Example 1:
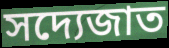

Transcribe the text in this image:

সদ্যেজাত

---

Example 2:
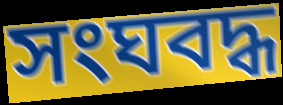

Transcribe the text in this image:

সংঘবদ্ধ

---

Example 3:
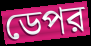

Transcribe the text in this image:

ডেপর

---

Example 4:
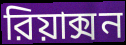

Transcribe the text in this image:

রিয়াক্সন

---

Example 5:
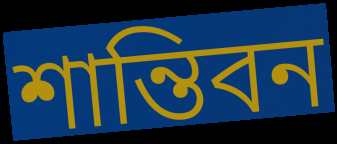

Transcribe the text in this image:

শান্তিবন